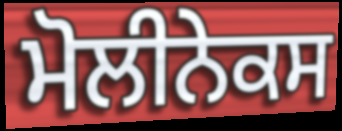
ਮੋਲੀਨੇਕਸ